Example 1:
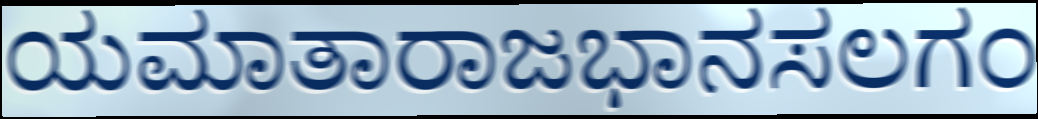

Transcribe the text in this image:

ಯಮಾತಾರಾಜಭಾನಸಲಗಂ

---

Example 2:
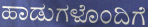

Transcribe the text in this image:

ಹಾಡುಗಳೊಂದಿಗೆ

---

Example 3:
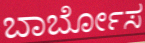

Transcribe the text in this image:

ಬಾರ್ಬೋಸ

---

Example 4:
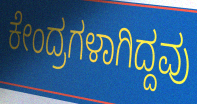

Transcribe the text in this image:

ಕೇಂದ್ರಗಳಾಗಿದ್ದವು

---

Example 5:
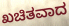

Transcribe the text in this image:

ಖಚಿತವಾದ